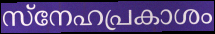
സ്നേഹപ്രകാശം